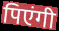
पिएंगी